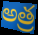
అత్ర